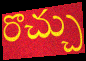
రొచ్చు